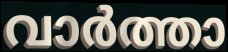
വാർത്താ